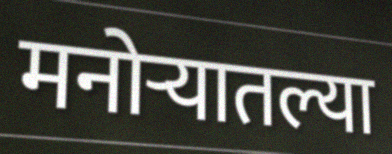
मनोर्‍यातल्या